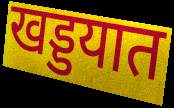
खड्डयात